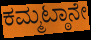
ಕಮ್ಮಟ್ಠಾನೇ